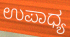
ಉಪಾಧ್ಯ